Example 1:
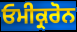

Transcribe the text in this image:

ਓਮੀਕ੍ਰਰੋਨ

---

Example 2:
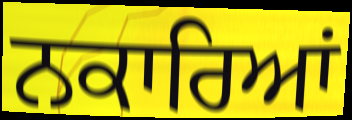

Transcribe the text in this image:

ਨਕਾਰਿਆਂ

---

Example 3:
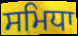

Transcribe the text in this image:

ਸਮਿਧਾ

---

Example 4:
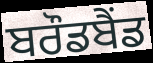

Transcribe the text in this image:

ਬਰੌਡਬੈਂਡ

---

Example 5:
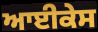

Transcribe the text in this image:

ਆਈਕੇਸ